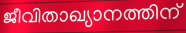
ജീവിതാഖ്യാനത്തിന്